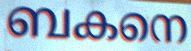
ബകനെ